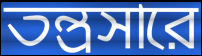
তন্ত্রসারে